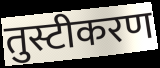
तुस्टीकरण